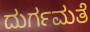
ದುರ್ಗಮತೆ